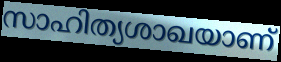
സാഹിത്യശാഖയാണ്